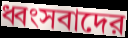
ধ্বংসবাদের